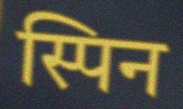
स्पिन